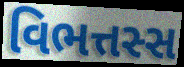
વિભત્તસ્સ